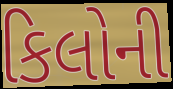
કિલોની